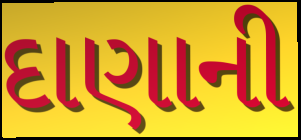
દાણાની